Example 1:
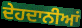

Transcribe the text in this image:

ਦੇਹਦਾਨੀਆਂ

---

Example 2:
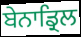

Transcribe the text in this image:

ਬੇਨਾਡ੍ਰਿਲ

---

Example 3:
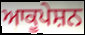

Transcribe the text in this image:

ਆਕੂਪੇਸ਼ਨ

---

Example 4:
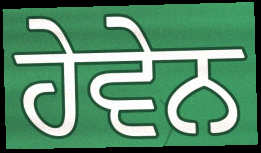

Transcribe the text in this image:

ਹੇਵੇਨ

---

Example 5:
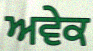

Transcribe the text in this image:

ਅਵੇਕ